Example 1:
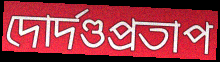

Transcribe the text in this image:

দোর্দণ্ডপ্রতাপ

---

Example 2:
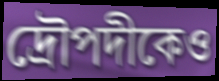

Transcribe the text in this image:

দ্রৌপদীকেও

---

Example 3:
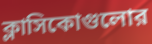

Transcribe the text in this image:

ক্লাসিকোগুলোর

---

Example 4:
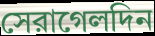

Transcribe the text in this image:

সেরাগেলদিন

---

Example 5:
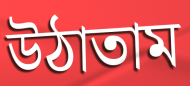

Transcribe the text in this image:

উঠাতাম